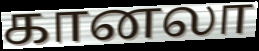
கானலா